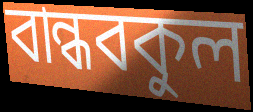
বান্ধবকুল